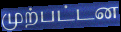
முற்பட்டன